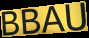
BBAU